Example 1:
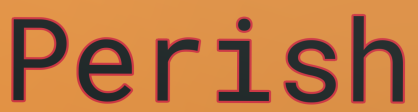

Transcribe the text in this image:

Perish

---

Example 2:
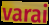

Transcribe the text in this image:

varai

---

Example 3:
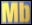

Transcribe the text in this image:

Mb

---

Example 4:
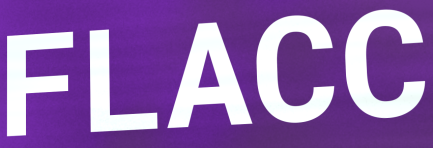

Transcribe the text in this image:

FLACC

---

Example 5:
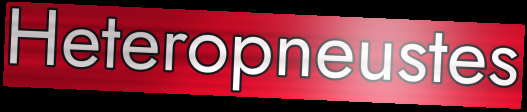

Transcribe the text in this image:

Heteropneustes